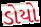
ડોયો